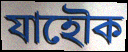
যাহৌক